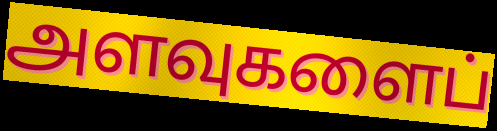
அளவுகளைப்